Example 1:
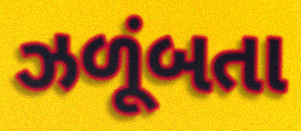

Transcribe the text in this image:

ઝળૂંબતા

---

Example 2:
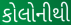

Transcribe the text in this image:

કોલોનીથી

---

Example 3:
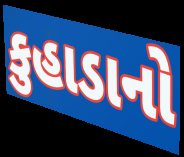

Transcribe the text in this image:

કુહાડાનો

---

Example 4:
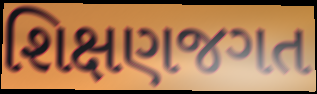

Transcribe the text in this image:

શિક્ષણજગત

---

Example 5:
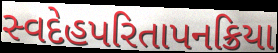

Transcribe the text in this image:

સ્વદેહપરિતાપનક્રિયા